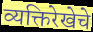
व्यक्तिरेखेचे